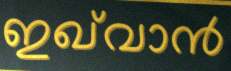
ഇഖ്‌വാൻ